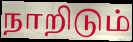
நாறிடும்